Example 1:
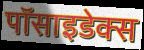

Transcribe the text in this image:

पॉसाइडेक्स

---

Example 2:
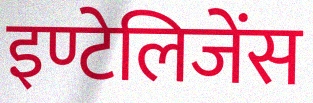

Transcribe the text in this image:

इण्टेलिजेंस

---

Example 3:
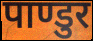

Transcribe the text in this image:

पाण्डुर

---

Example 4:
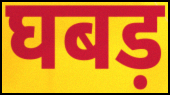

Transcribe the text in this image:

घबड़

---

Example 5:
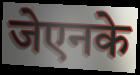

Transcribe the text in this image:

जेएनके